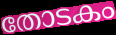
തോടകം